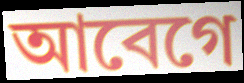
আবেগে